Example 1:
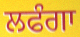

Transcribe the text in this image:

ਲਫੰਗਾ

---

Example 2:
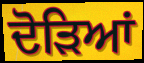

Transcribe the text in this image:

ਦੋੜਿਆਂ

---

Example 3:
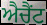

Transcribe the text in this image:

ਐਚੈਂਟ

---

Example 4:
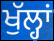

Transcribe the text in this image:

ਖੁੱਲ੍ਹਾਂ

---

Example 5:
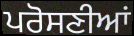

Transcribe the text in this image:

ਪਰੋਸਣੀਆਂ